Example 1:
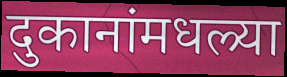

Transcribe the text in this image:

दुकानांमधल्या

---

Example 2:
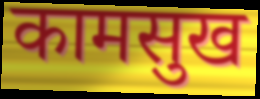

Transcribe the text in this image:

कामसुख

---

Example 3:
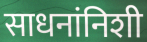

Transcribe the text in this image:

साधनांनिशी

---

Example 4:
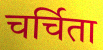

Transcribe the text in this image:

चर्चिता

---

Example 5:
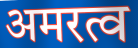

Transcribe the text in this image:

अमरत्व